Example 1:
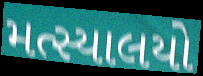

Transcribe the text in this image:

મત્સ્યાલયો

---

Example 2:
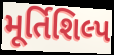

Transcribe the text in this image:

મૂર્તિશિલ્પ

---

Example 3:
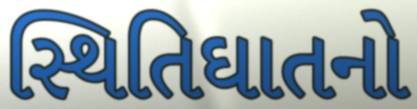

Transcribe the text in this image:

સ્થિતિઘાતનો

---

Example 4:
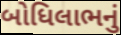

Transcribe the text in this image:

બોધિલાભનું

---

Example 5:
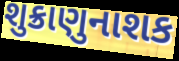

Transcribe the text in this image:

શુક્રાણુનાશક